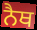
ਨੈਥ